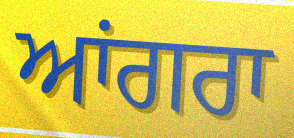
ਆਂਗਰਾ